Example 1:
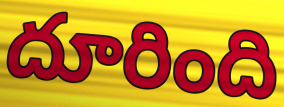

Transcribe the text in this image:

దూరింది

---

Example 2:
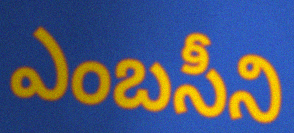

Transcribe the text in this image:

ఎంబసీని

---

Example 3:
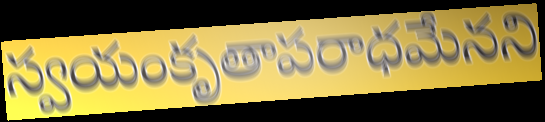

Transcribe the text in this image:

స్వయంకృతాపరాధమేనని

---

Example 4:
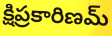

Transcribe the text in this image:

క్షిప్రకారిణమ్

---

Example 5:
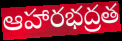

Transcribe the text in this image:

ఆహారభద్రత